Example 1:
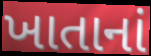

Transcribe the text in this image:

ખાતાનાં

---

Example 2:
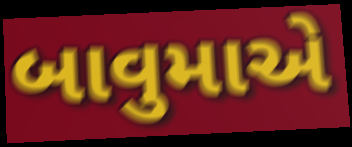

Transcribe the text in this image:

બાવુમાએ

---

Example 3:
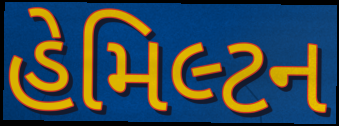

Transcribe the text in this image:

હેમિલ્ટન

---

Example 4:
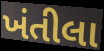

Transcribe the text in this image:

ખંતીલા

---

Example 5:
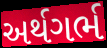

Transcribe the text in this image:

અર્થગર્ભ